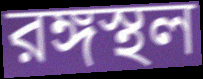
রঙ্গস্থল